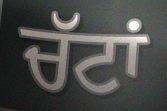
ਚੱਟਾਂ